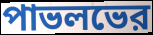
পাভলভের